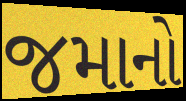
જમાનો